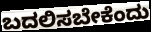
ಬದಲಿಸಬೇಕೆಂದು